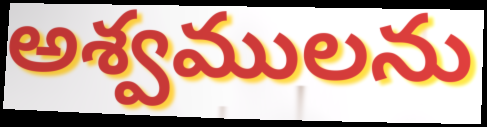
అశ్వములను